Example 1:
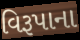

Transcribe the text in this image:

વિરૂપાના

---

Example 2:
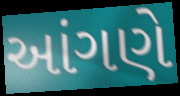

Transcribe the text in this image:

આંગણે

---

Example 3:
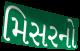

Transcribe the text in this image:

મિસરનો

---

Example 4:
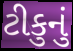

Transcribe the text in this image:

ટીકુનું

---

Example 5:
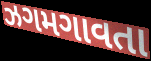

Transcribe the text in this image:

ઝગમગાવતા